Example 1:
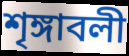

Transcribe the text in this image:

শৃঙ্গাবলী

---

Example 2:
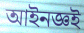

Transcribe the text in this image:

আইনজ্ঞই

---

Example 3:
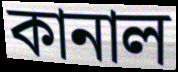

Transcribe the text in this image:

কানাল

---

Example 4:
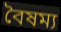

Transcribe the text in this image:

বৈষম্য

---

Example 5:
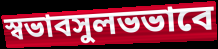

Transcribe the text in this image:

স্বভাবসুলভভাবে